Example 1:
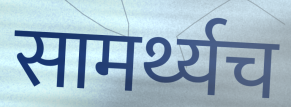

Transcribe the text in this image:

सामर्थ्यच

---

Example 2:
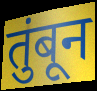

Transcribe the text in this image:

तुंबून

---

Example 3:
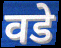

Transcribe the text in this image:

वडे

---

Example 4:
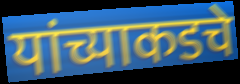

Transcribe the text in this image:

यांच्याकडचे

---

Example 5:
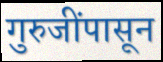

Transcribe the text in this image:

गुरुजींपासून